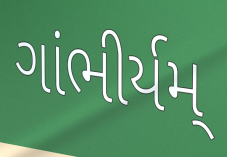
ગાંભીર્યમ્